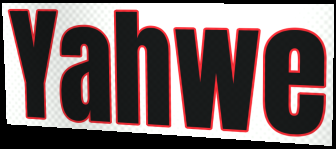
Yahwe